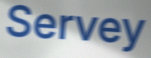
Servey